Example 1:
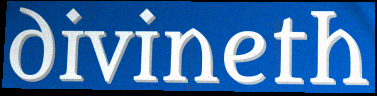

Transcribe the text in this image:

divineth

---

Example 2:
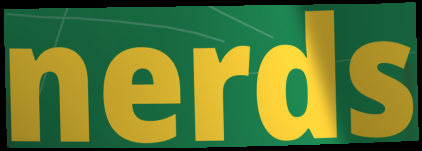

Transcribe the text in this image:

nerds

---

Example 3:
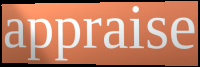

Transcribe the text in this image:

appraise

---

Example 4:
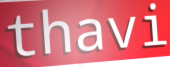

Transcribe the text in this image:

thavi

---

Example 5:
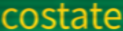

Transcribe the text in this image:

costate